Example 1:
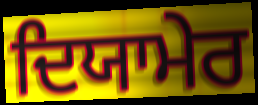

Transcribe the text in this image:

ਦਿਯਾਮੇਰ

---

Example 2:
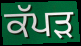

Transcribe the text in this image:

ਕੱਪੜ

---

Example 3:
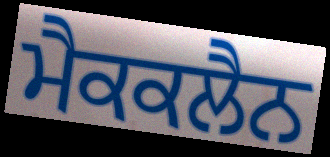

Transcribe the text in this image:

ਮੈਕਕਲੈਨ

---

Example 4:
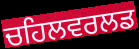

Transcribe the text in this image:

ਚਹਿਲਵਰਲਡ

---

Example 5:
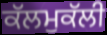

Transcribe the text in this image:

ਕੱਲਮੁਕੱਲੀ